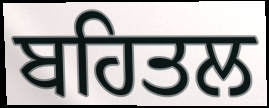
ਬਹਿਤਲ